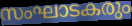
സംഘാടകരും